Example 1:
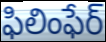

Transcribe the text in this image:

ఫిలింఫేర్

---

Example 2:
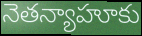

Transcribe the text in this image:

నెతన్యాహూకు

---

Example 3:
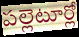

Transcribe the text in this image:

పల్లెటూర్లో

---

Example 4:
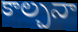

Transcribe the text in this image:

కాల్చనా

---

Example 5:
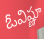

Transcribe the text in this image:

ఓవిష్ణూ